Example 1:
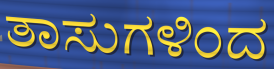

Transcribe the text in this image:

ತಾಸುಗಳಿಂದ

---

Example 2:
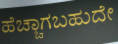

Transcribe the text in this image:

ಹೆಚ್ಚಾಗಬಹುದೇ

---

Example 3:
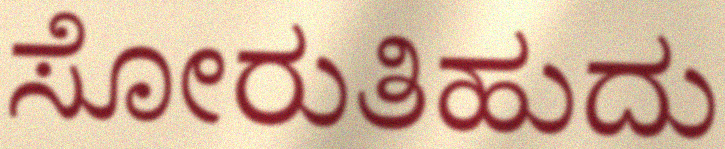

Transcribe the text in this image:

ಸೋರುತಿಹುದು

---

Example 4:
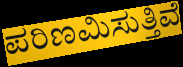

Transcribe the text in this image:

ಪರಿಣಮಿಸುತ್ತಿವೆ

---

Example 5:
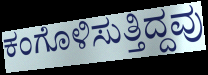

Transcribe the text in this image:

ಕಂಗೊಳಿಸುತ್ತಿದ್ದವು